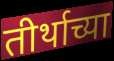
तीर्थाच्या